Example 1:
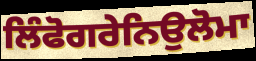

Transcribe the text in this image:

ਲਿੰਫੋਗਰੇਨਿਉਲੋਮਾ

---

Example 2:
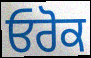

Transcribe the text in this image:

ਓਰੋਕ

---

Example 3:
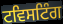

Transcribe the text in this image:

ਟਵਿਸਟਿੰਗ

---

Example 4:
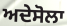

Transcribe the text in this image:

ਅਦੇਸੋਲਾ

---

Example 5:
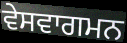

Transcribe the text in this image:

ਵੇਸਵਾਗਮਨ